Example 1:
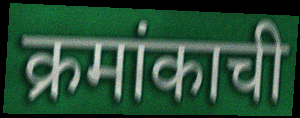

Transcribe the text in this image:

क्रमांकाची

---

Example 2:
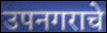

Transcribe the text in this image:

उपनगराचे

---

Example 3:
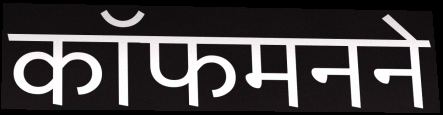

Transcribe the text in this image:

कॉफमनने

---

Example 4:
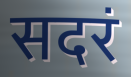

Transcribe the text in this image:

सदरं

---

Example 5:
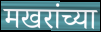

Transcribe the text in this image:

मखरांच्या